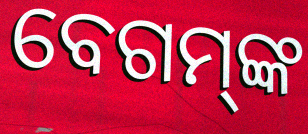
ବେଗମ୍‌ଙ୍କ